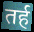
तर्ह